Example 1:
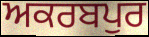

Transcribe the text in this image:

ਅਕਰਬਪੁਰ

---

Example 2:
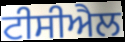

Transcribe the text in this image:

ਟੀਸੀਐਲ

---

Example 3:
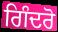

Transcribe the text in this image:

ਗਿੰਦਰੋ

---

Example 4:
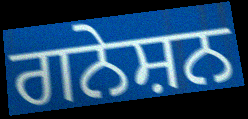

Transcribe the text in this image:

ਗਨੇਸ਼ਨ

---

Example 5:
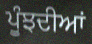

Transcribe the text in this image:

ਪੂੰਝਦੀਆਂ